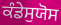
ਕੰਡੇਸੁਯੋਸ